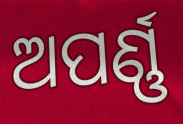
ଅପର୍ଣ୍ଣ